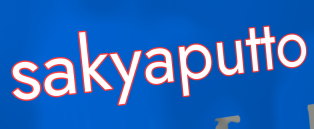
sakyaputto